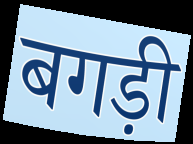
बगड़ी